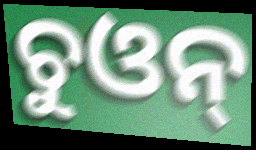
ଚୁଓନ୍